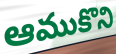
ఆముకొని